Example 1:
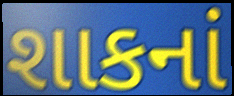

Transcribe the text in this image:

શાકનાં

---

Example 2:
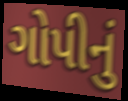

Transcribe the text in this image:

ગોપીનું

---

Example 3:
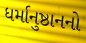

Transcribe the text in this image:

ધર્માનુષ્ઠાનનો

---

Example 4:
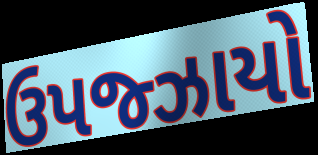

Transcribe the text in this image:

ઉપજ્ઝાયો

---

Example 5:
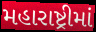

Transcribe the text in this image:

મહારાષ્ટ્રીમાં